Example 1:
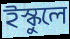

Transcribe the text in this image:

ইস্কুলে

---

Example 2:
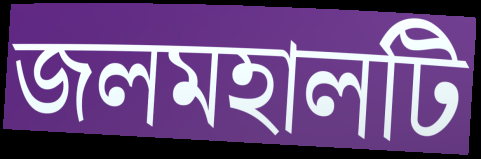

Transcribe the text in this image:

জলমহালটি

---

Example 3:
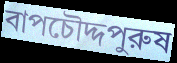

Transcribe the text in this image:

বাপচৌদ্দপুরুষ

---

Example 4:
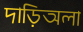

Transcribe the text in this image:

দাড়িঅলা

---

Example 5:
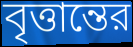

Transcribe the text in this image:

বৃত্তান্তের